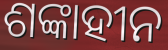
ଶଙ୍କାହୀନ